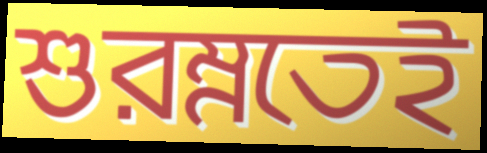
শুরম্নতেই